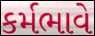
કર્મભાવે